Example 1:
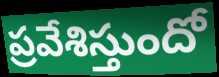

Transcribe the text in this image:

ప్రవేశిస్తుందో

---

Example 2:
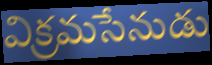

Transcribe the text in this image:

విక్రమసేనుడు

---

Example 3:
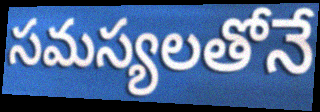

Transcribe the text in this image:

సమస్యలతోనే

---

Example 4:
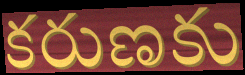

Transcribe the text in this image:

కరుణకు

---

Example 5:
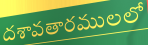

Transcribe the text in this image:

దశావతారములలో